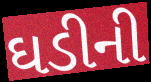
ઘડીની